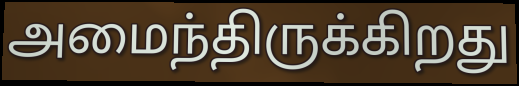
அமைந்திருக்கிறது